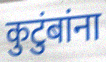
कुटुंबांना